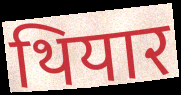
थियार